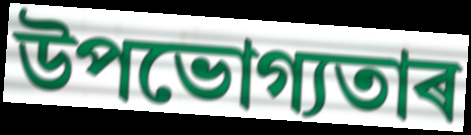
উপভোগ্যতাৰ